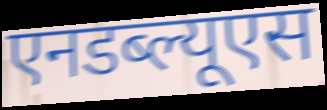
एनडब्ल्यूएस